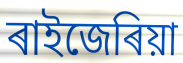
ৰাইজেৰিয়া